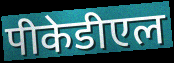
पीकेडीएल